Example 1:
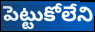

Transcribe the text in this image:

పెట్టుకోలేని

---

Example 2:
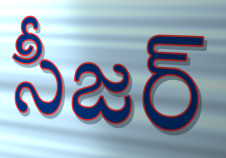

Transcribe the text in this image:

సీజర్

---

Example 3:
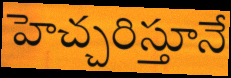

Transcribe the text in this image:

హెచ్చరిస్తూనే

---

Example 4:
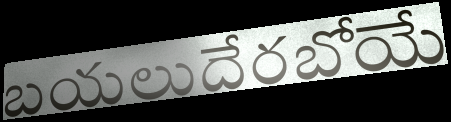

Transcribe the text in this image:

బయలుదేరబోయే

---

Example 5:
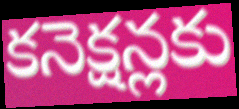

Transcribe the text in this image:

కనెక్షన్లకు